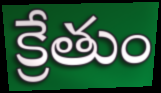
క్రేతుం